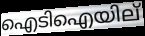
ഐടിഐയില്